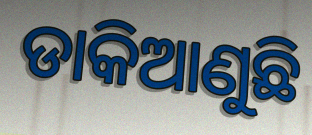
ଡାକିଆଣୁଛି